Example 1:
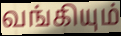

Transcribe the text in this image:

வங்கியும்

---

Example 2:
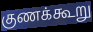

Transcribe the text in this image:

குணக்கூறு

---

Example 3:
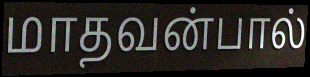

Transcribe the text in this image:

மாதவன்பால்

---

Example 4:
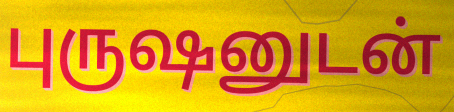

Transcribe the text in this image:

புருஷனுடன்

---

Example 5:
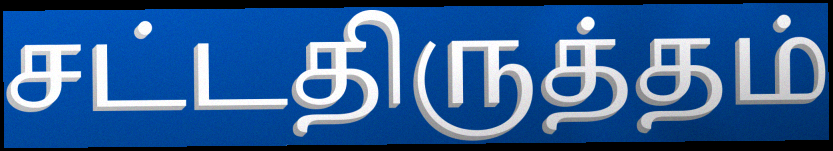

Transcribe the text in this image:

சட்டதிருத்தம்